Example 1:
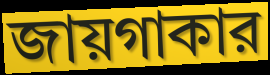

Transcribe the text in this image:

জায়গাকার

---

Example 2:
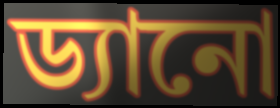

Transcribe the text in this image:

ড্যানো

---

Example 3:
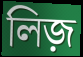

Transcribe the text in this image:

লিজ়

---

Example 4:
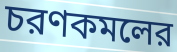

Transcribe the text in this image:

চরণকমলের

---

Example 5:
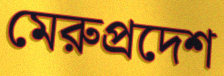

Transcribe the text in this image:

মেরুপ্রদেশ